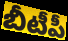
బీటీపీ